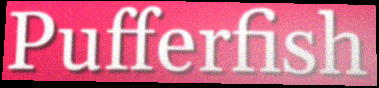
Pufferfish